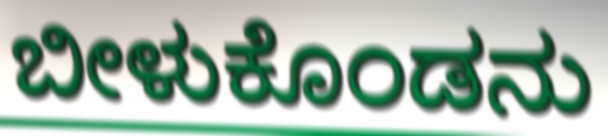
ಬೀಳುಕೊಂಡನು